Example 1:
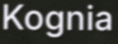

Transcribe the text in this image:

Kognia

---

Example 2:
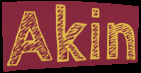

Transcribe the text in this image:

Akin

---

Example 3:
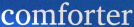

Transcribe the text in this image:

comforter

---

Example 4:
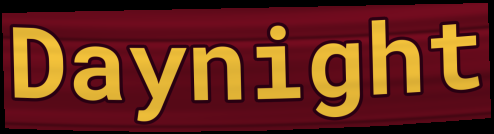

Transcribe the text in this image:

Daynight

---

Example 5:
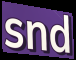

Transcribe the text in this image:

snd